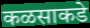
कळसाकडे